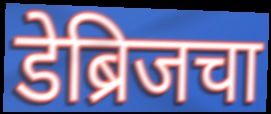
डेब्रिजचा